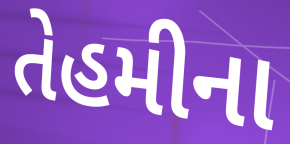
તેહમીના